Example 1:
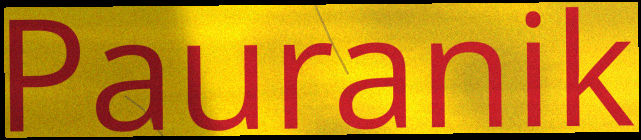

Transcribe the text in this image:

Pauranik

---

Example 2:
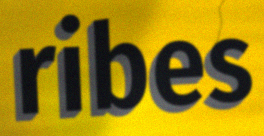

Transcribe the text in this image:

ribes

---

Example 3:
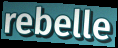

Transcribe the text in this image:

rebelle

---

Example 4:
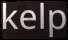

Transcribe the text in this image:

kelp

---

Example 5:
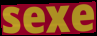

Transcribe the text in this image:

sexe